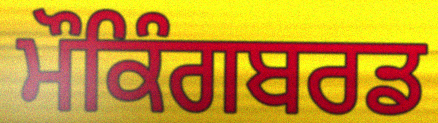
ਮੌਕਿੰਗਬਰਡ